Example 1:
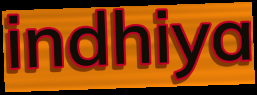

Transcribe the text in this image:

indhiya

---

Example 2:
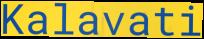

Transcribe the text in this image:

Kalavati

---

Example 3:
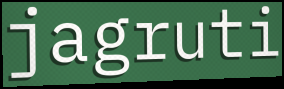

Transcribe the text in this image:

jagruti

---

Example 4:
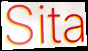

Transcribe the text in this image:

Sita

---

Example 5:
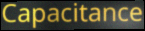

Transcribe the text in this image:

Capacitance